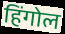
हिंगोल